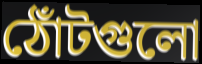
ঠোঁটগুলো